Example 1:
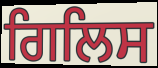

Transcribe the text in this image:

ਗਿਲਿਸ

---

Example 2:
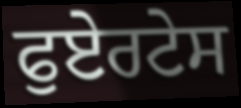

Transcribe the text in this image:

ਫੁਏਰਟੇਸ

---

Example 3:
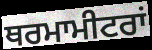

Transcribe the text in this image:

ਥਰਮਾਮੀਟਰਾਂ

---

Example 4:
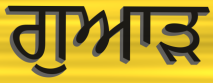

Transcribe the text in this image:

ਗੁਆੜ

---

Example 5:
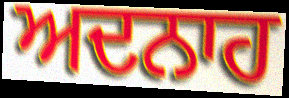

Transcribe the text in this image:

ਅਦਨਾਹ